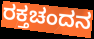
ರಕ್ತಚಂದನ